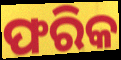
ଫରିକ